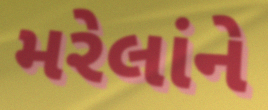
મરેલાંને